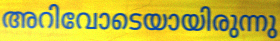
അറിവോടെയായിരുന്നു